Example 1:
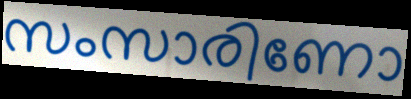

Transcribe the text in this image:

സംസാരിണോ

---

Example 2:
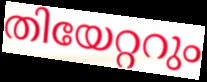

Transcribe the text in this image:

തിയേറ്ററും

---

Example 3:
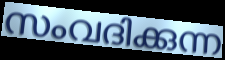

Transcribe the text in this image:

സംവദിക്കുന്ന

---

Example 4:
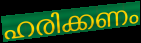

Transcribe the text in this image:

ഹരിക്കണം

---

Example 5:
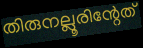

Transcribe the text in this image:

തിരുനല്ലൂരിന്റേത്